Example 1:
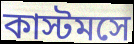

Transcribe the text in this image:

কাস্টমসে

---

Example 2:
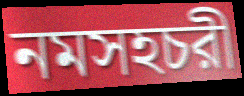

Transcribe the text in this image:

নমসহচরী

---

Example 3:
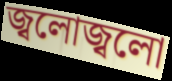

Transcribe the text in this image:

জ্বলোজ্বলো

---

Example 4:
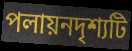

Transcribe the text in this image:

পলায়নদৃশ্যটি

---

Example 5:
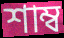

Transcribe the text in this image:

শাম্ব